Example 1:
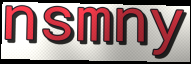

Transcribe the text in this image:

nsmny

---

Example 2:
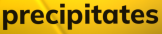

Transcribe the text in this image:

precipitates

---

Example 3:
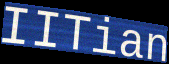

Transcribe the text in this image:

IITian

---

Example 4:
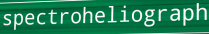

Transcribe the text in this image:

spectroheliograph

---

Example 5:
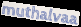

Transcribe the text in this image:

muthalvaa